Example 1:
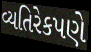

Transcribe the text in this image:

વ્યતિરેકપણે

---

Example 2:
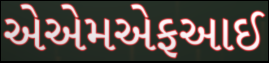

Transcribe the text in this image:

એએમએફઆઈ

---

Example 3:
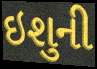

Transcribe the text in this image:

ઇશુની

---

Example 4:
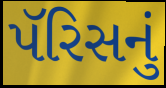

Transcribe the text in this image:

પૅરિસનું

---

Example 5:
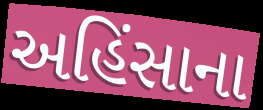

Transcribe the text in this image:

અહિંસાના